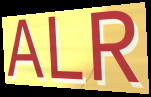
ALR